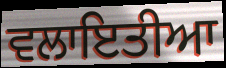
ਵਲਾਇਤੀਆ